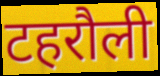
टहरौली